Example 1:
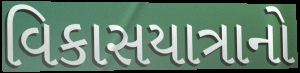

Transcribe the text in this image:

વિકાસયાત્રાનો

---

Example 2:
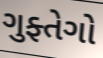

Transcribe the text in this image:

ગુફ્તેગો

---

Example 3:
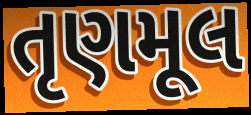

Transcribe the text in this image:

તૃણમૂલ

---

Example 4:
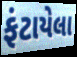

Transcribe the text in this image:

ફંટાયેલા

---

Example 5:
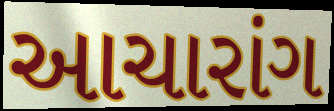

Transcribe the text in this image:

આચારાંગ